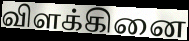
விளக்கினை